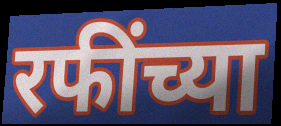
रफींच्या